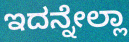
ಇದನ್ನೇಲ್ಲಾ